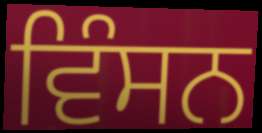
ਵਿੰਸਨ